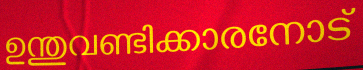
ഉന്തുവണ്ടിക്കാരനോട്